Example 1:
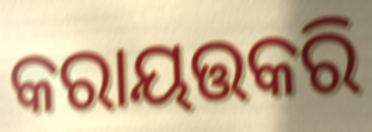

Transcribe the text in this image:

କରାୟତ୍ତକରି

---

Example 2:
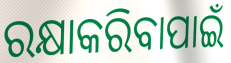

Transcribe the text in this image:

ରକ୍ଷାକରିବାପାଇଁ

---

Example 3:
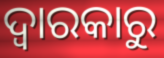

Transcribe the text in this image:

ଦ୍ଵାରକାରୁ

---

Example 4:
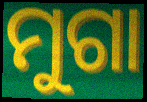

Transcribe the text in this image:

ମୁଗା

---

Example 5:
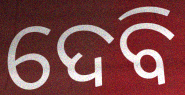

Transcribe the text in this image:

ଦେବି